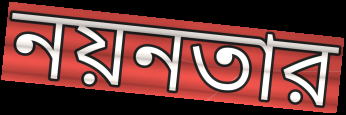
নয়নতার